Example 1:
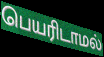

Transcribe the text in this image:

பெயரிடாமல்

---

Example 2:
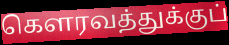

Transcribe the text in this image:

கௌரவத்துக்குப்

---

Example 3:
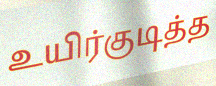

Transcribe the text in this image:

உயிர்குடித்த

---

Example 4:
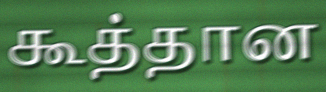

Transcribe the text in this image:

கூத்தான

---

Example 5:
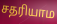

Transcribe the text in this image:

சதரியாம